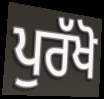
ਪੁਰੱਖੋ